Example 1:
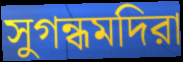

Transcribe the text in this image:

সুগন্ধমদিরা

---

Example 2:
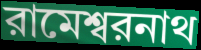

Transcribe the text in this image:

রামেশ্বরনাথ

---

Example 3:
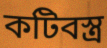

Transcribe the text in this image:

কটিবস্ত্র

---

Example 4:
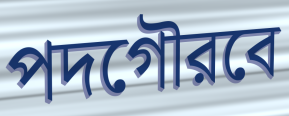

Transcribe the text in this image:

পদগৌরবে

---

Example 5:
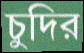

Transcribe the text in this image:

চুদির